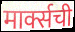
मार्क्सची